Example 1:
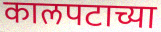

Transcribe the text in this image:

कालपटाच्या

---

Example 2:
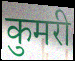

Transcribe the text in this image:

कुमरी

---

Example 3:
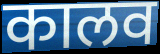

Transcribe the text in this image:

कालव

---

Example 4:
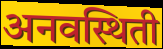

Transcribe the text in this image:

अनवस्थिती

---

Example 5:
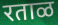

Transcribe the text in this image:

रताळ